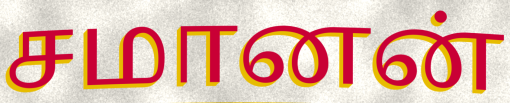
சமானன்